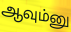
ஆவும்னு